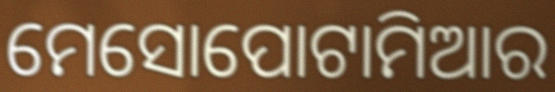
ମେସୋପୋଟାମିଆର